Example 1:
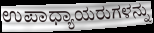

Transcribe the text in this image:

ಉಪಾಧ್ಯಾಯರುಗಳನ್ನು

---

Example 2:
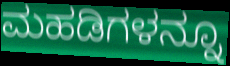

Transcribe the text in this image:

ಮಹಡಿಗಳನ್ನೂ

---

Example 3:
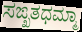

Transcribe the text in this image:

ಸಙ್ಖತಧಮ್ಮಾ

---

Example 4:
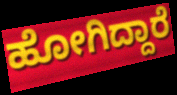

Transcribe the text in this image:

ಹೋಗಿದ್ದಾರೆ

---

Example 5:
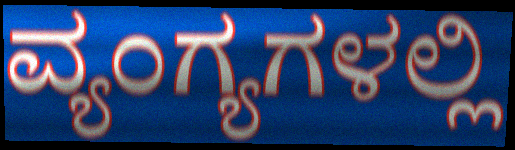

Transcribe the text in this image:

ವ್ಯಂಗ್ಯಗಳಲ್ಲಿ